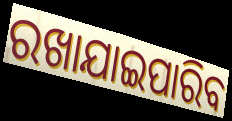
ରଖାଯାଇପାରିବ